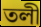
তলী